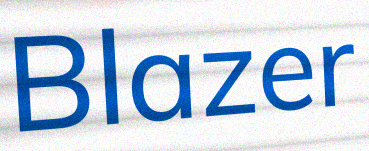
Blazer